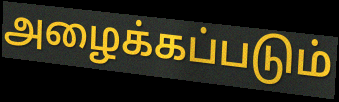
அழைக்கப்படும்